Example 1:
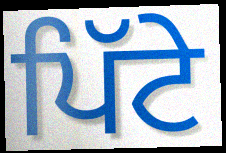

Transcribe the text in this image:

ਪਿੱਟੇ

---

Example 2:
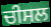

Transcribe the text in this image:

ਚੀਸਲ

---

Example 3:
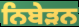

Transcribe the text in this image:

ਨਿਬੇੜਨ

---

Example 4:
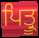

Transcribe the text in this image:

ਪਿਤ੍ਰੂ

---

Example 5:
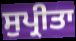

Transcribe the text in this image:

ਸੁਪ੍ਰੀਤਾ